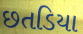
છતડિયા